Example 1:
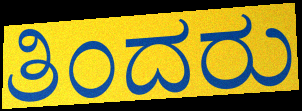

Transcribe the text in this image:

ತಿಂದರು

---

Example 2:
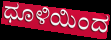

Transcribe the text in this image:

ಧೂಳಿಯಿಂದ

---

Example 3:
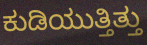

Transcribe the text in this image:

ಕುಡಿಯುತ್ತಿತ್ತು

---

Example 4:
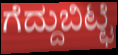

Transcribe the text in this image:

ಗೆದ್ದುಬಿಟ್ಟೆ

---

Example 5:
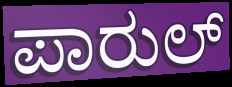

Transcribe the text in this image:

ಪಾರುಲ್